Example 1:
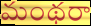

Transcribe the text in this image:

మంథరా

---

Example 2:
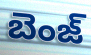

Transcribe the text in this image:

బెంజ్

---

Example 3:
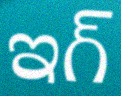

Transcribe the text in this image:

ఇగ్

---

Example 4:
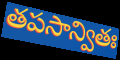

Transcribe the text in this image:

తపసాన్వితః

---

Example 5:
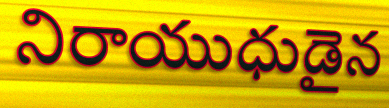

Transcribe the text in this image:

నిరాయుధుడైన